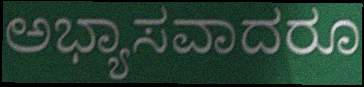
ಅಭ್ಯಾಸವಾದರೂ